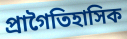
প্রাগৈতিহাসিক